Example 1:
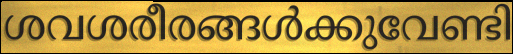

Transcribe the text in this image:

ശവശരീരങ്ങൾക്കുവേണ്ടി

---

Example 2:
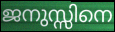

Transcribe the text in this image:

ജനുസ്സിനെ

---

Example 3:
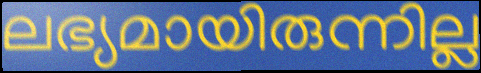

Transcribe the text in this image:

ലഭ്യമായിരുന്നില്ല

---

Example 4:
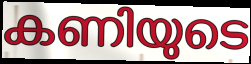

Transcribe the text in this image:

കണിയുടെ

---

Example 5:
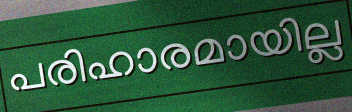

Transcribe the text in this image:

പരിഹാരമായില്ല